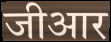
जीआर